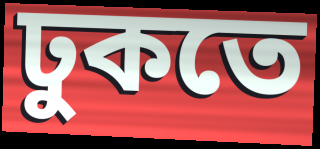
ঢুকতে